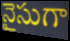
నైసుగా